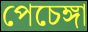
পেচেঙ্গা